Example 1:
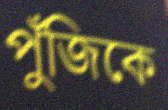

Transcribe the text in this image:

পুঁজিকে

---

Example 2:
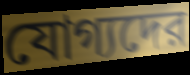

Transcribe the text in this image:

যোগ্যদের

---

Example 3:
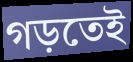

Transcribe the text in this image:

গড়তেই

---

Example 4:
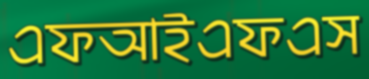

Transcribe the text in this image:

এফআইএফএস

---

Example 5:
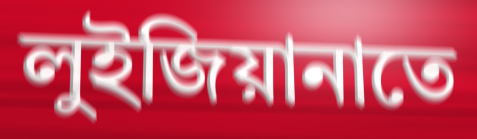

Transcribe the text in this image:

লুইজিয়ানাতে